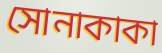
সোনাকাকা